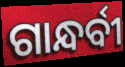
ଗାନ୍ଧର୍ବୀ